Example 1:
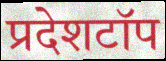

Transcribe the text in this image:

प्रदेशटॉप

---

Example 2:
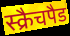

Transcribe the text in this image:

स्क्रैचपैड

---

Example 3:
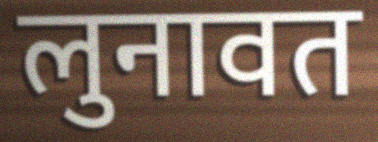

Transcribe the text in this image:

लुनावत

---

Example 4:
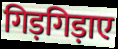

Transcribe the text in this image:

गिड़गिड़ाए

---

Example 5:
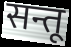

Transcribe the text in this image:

सन्तू